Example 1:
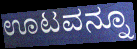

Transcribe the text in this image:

ಊಟವನ್ನೂ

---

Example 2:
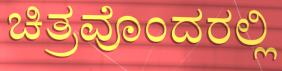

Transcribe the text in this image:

ಚಿತ್ರವೊಂದರಲ್ಲಿ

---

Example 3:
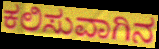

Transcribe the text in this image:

ಕಲಿಸುವಾಗಿನ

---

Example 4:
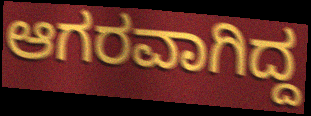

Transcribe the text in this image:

ಆಗರವಾಗಿದ್ದ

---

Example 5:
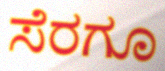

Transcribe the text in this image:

ಸೆರಗೂ